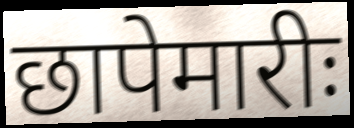
छापेमारीः